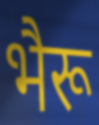
भैरू